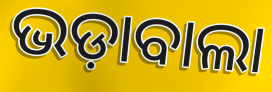
ଭଡ଼ାବାଲା